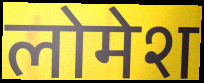
लोमेश